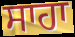
ਸਾਹਾ